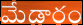
మేడారం